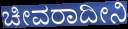
ಚೀವರಾದೀನಿ